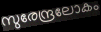
സുരേന്ദ്രലോകം